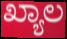
ಖ್ಯಾಲ